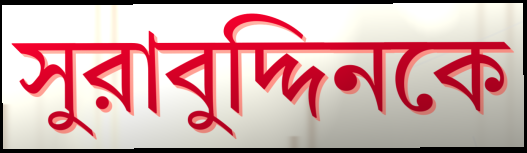
সুরাবুদ্দিনকে